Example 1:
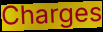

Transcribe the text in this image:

Charges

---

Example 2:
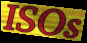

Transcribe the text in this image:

ISOs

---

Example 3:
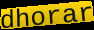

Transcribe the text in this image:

dhorar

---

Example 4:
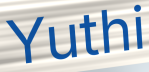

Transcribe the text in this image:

Yuthi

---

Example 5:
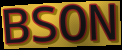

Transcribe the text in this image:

BSON